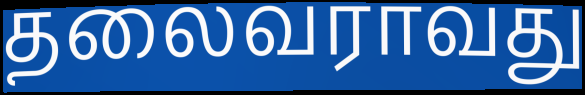
தலைவராவது